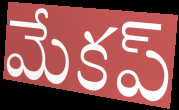
మేకప్